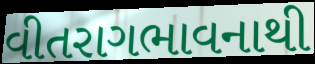
વીતરાગભાવનાથી